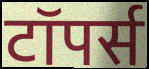
टॉपर्स